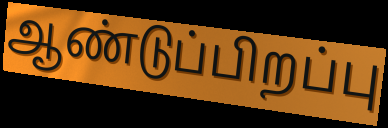
ஆண்டுப்பிறப்பு